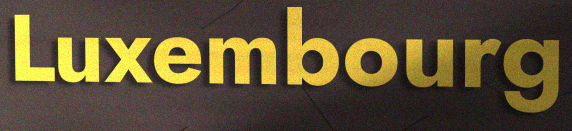
Luxembourg